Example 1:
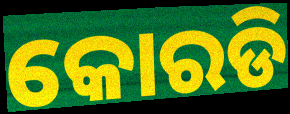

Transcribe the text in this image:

କୋରଡି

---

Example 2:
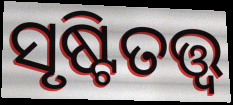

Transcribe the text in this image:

ସୃଷ୍ଟିତତ୍ତ୍ୱ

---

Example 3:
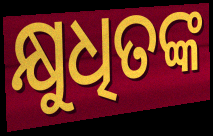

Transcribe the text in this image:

କ୍ଷୁଧିତଙ୍କ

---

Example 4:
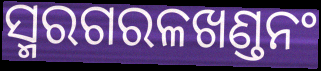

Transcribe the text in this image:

ସ୍ମରଗରଳଖଣ୍ଡନଂ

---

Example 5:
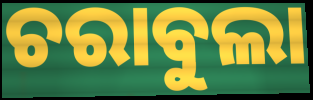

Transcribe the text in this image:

ଚରାବୁଲା